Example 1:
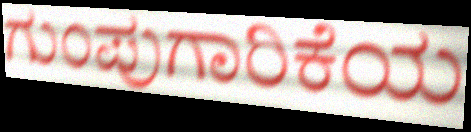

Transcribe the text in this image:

ಗುಂಪುಗಾರಿಕೆಯ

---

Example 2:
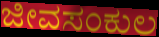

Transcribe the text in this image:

ಜೀವಸಂಕುಲ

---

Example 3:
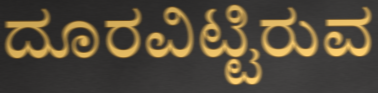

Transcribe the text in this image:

ದೂರವಿಟ್ಟಿರುವ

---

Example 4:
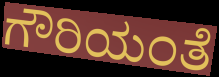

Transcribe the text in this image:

ಗೌರಿಯಂತೆ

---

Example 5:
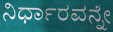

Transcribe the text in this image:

ನಿರ್ಧಾರವನ್ನೇ